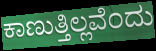
ಕಾಣುತ್ತಿಲ್ಲವೆಂದು